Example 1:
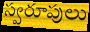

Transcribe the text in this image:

స్వరూపులు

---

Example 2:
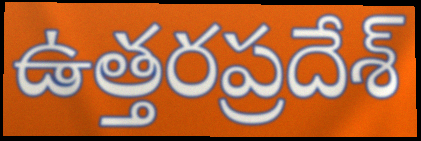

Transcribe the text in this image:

ఉత్తరప్రదేశ్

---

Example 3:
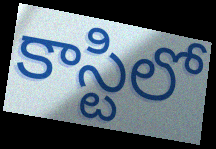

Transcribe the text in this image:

కాస్టిలో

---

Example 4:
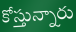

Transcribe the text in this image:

కోస్తున్నారు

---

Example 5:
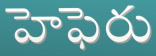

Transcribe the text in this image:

హెఫెరు